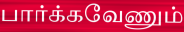
பார்க்கவேணும்